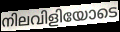
നിലവിളിയോടെ